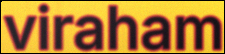
viraham